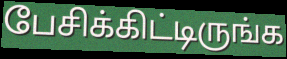
பேசிக்கிட்டிருங்க